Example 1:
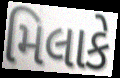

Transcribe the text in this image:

મિલાકે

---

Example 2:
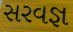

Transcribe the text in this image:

સરવજ્ઞ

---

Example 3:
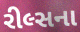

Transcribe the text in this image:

રીલ્સના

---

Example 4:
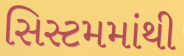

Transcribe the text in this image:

સિસ્ટમમાંથી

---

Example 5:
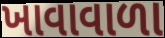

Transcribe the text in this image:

ખાવાવાળા